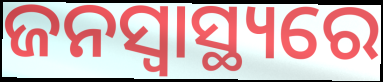
ଜନସ୍ବାସ୍ଥ୍ୟରେ